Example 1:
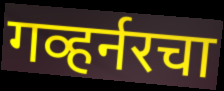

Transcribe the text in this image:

गव्हर्नरचा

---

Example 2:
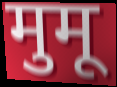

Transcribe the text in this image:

मुमू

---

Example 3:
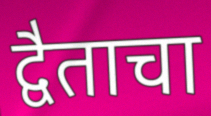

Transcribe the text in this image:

द्वैताचा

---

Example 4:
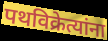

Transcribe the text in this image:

पथविक्रेत्यांना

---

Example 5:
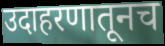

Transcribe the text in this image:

उदाहरणातूनच